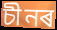
চীনৰ